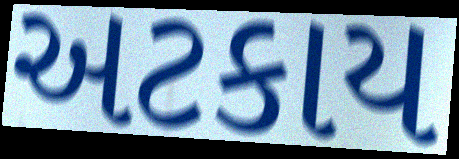
અટકાય